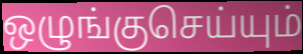
ஒழுங்குசெய்யும்